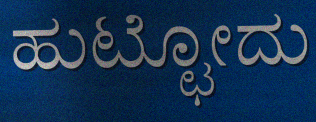
ಹುಟ್ಟೋದು